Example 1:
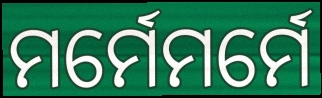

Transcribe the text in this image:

ମର୍ମେମର୍ମେ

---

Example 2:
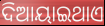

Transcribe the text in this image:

ଦିଆୟାଇଥାଏ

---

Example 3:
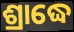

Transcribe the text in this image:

ଶ୍ରାଦ୍ଧେ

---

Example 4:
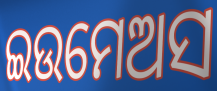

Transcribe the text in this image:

ଇଉମେଅସ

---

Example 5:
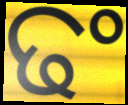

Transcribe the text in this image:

ଢଂ